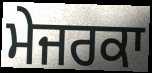
ਮੇਜਰਕਾ